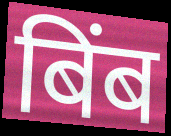
बिंब